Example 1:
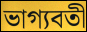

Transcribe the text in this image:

ভাগ্যবতী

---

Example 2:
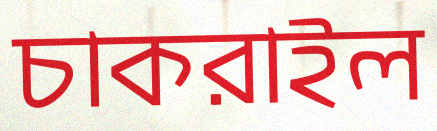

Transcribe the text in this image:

চাকরাইল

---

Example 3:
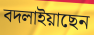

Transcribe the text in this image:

বদলাইয়াছেন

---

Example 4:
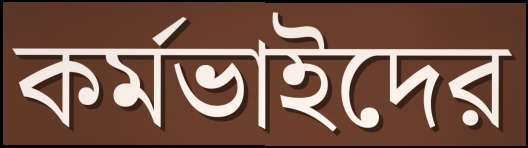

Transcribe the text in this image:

কর্মভাইদের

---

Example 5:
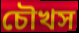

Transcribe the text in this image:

চৌখস